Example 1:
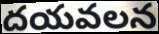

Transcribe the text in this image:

దయవలన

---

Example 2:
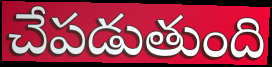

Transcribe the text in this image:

చేపడుతుంది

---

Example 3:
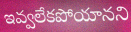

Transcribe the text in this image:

ఇవ్వలేకపోయానని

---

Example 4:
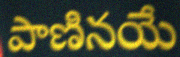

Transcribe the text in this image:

పాణినయే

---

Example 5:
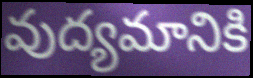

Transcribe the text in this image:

వుద్యమానికి